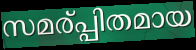
സമര്പ്പിതമായ